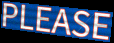
PLEASE